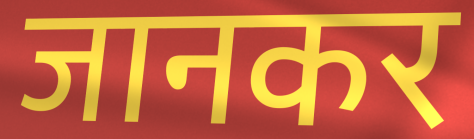
जानकर